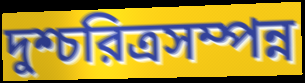
দুশ্চরিত্রসম্পন্ন